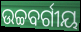
ଉଚ୍ଚବର୍ଗୀୟ